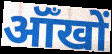
ऑँखों